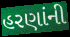
હરણાંની